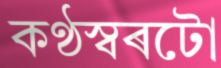
কণ্ঠস্বৰটো